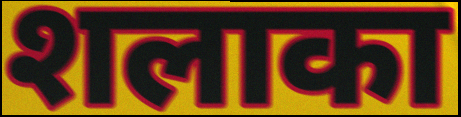
शलाका